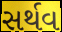
સર્થવ